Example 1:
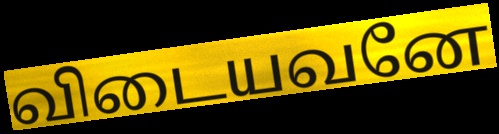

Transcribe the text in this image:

விடையவனே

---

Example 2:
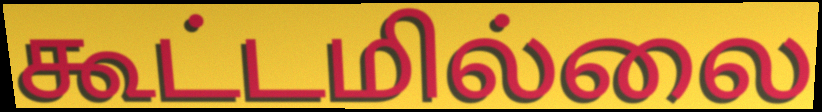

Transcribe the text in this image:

கூட்டமில்லை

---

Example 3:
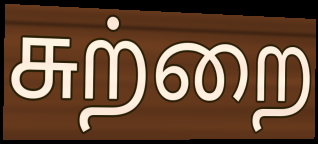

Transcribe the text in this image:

சுற்றை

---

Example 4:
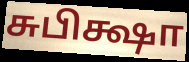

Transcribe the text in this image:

சுபிக்ஷா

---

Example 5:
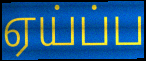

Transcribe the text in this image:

ஏய்ப்ப